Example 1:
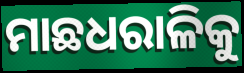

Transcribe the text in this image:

ମାଛଧରାଳିକୁ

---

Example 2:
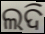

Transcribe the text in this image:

ଲଦି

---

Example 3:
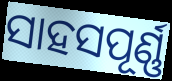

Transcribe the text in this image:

ସାହସପୂର୍ଣ୍ଣ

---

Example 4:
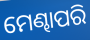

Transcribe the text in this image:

ମେଣ୍ଢାପରି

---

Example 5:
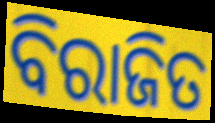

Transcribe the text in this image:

ବିରାଜିତ